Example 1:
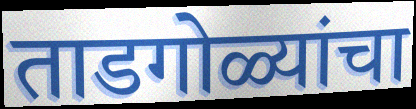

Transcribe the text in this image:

ताडगोळ्यांचा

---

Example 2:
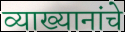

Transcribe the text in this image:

व्याख्यानांचे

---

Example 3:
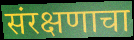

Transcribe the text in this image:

संरक्षणाचा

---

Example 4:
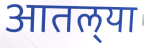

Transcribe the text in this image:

आतल्या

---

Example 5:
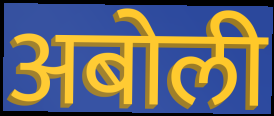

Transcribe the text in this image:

अबोली